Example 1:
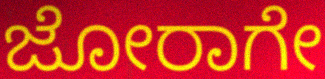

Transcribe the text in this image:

ಜೋರಾಗೇ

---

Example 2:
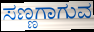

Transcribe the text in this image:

ಸಣ್ಣಗಾಗುವ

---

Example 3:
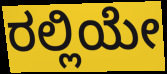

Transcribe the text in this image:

ರಲ್ಲಿಯೇ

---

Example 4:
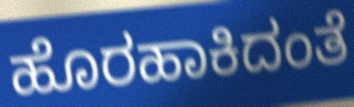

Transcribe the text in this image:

ಹೊರಹಾಕಿದಂತೆ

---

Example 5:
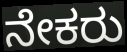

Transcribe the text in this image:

ನೇಕರು